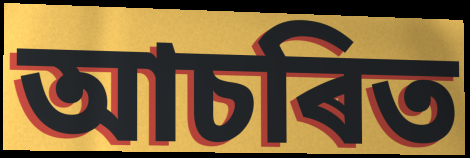
আচৰিত